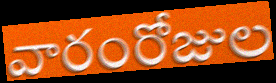
వారంరోజుల